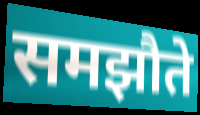
समझौते